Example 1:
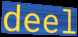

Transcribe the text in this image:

deel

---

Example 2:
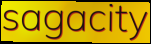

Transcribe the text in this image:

sagacity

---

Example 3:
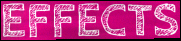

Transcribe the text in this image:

EFFECTS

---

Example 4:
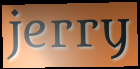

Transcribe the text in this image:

jerry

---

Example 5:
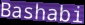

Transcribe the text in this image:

Bashabi